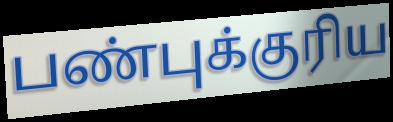
பண்புக்குரிய